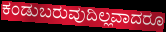
ಕಂಡುಬರುವುದಿಲ್ಲವಾದರೂ